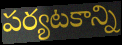
పర్యటకాన్ని